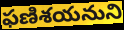
ఫణిశయనుని